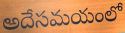
అదేసమయంలో